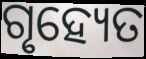
ଗୃହ୍ଯେତ